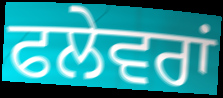
ਫਲੇਵਰਾਂ